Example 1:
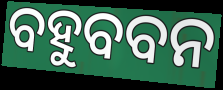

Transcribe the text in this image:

ବହୁବବନ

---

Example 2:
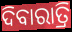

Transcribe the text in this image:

ଦିବାରାତ୍ରି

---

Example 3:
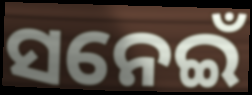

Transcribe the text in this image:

ସନେଇଁ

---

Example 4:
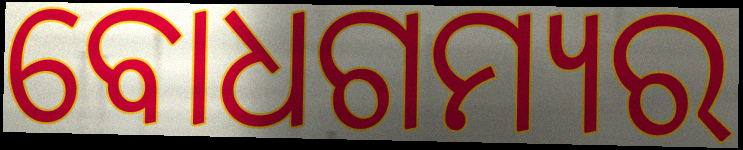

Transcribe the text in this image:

ବୋଧଗମ୍ୟର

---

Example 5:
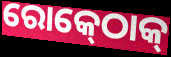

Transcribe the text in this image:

ରୋକ୍‍ଠୋକ୍